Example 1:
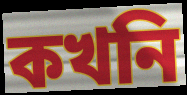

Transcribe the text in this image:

কখনি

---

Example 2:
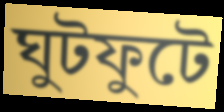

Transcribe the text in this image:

ঘুটফুটে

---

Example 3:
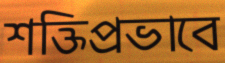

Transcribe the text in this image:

শক্তিপ্রভাবে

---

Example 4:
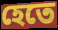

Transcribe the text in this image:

হেতে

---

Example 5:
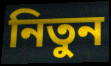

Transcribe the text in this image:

নিতুন